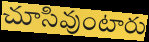
చూసివుంటారు